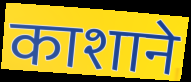
काशाने